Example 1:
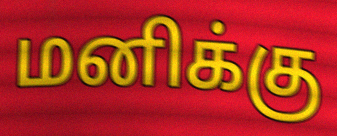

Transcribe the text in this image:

மனிக்கு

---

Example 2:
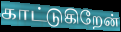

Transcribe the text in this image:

காட்டுகிறேன்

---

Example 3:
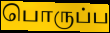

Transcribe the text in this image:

பொருப்ப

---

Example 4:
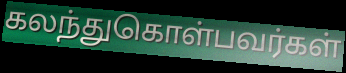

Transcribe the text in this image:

கலந்துகொள்பவர்கள்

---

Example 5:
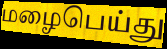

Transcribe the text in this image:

மழைபெய்து